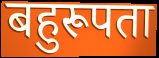
बहुरूपता